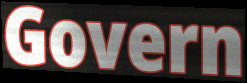
Govern